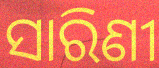
ସାରିଣୀ